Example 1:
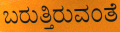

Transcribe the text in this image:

ಬರುತ್ತಿರುವಂತೆ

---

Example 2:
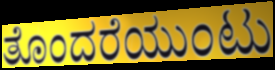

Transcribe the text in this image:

ತೊಂದರೆಯುಂಟು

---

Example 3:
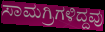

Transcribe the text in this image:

ಸಾಮಗ್ರಿಗಳಿದ್ದವು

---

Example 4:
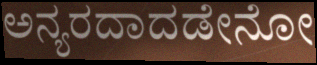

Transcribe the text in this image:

ಅನ್ಯರದಾದಡೇನೋ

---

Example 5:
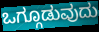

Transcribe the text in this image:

ಒಗ್ಗೂಡುವುದು